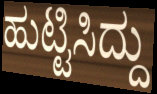
ಹುಟ್ಟಿಸಿದ್ದು